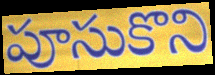
పూసుకొని